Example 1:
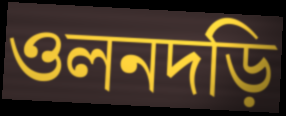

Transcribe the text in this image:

ওলনদড়ি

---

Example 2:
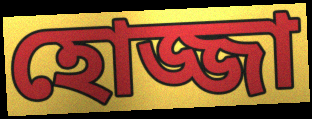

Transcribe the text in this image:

হোজ্জা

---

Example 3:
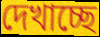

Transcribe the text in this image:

দেখাচ্ছে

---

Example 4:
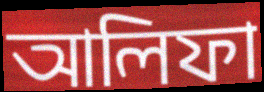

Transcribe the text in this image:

আলিফা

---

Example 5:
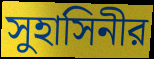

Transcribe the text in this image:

সুহাসিনীর